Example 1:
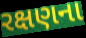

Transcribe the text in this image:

રક્ષણના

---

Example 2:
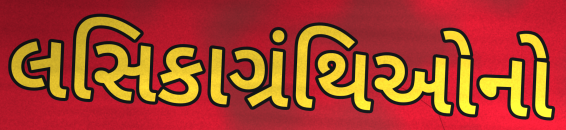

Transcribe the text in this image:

લસિકાગ્રંથિઓનો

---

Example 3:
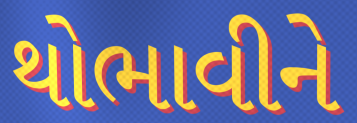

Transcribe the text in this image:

થોભાવીને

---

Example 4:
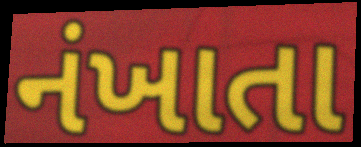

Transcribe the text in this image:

નંખાતા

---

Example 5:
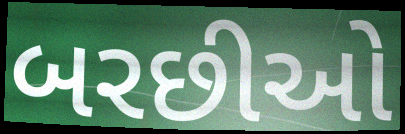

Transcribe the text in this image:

બરછીઓ